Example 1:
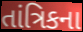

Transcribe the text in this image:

તાંત્રિકના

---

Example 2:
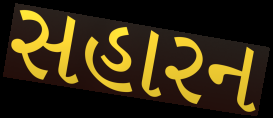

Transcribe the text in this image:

સહારન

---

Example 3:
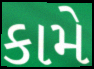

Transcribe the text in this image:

કામે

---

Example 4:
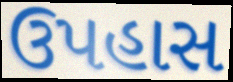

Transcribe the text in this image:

ઉપહાસ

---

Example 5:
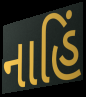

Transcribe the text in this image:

નાહિં